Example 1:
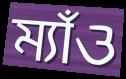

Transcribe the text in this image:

ম্যাঁও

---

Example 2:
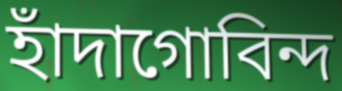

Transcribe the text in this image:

হাঁদাগোবিন্দ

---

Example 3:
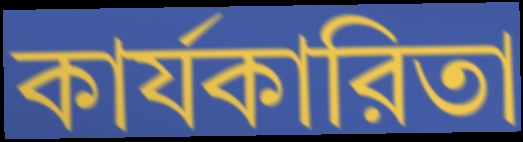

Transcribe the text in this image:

কার্যকারিতা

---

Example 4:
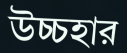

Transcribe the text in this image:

উচ্চহার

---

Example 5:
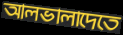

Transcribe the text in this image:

আলভালাদেতে